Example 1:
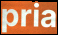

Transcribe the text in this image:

pria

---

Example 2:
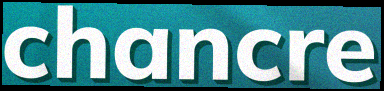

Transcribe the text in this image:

chancre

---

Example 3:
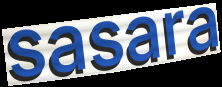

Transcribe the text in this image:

sasara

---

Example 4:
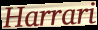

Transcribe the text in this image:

Harrari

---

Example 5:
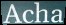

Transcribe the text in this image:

Acha